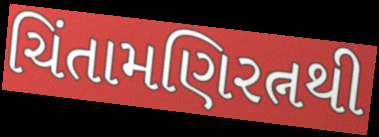
ચિંતામણિરત્નથી